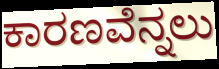
ಕಾರಣವೆನ್ನಲು